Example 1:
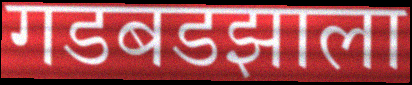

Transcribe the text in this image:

गडबडझाला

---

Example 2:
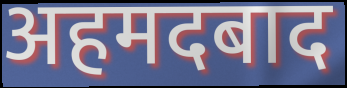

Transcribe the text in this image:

अहमदबाद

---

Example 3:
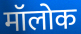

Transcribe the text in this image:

मॉलोक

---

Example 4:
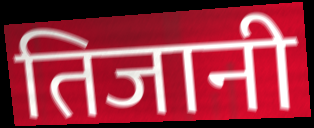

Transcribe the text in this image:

तिजानी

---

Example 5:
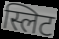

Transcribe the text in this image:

स्लिट